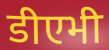
डीएभी